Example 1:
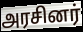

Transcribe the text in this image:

அரசினர்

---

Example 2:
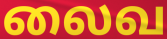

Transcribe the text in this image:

லைவ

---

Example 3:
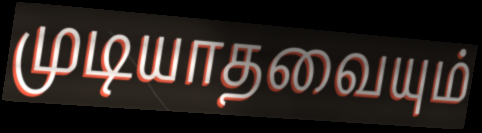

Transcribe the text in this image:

முடியாதவையும்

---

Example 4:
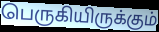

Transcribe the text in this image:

பெருகியிருக்கும்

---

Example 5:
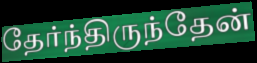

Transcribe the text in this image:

தேர்ந்திருந்தேன்